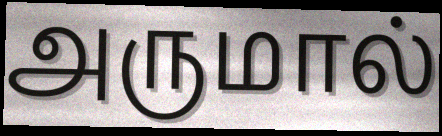
அருமால்